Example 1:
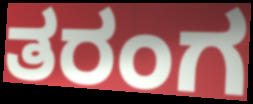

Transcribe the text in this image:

ತರಂಗ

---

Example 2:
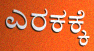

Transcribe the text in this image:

ಎರಕಕ್ಕೆ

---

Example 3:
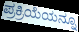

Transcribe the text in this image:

ಪ್ರಕ್ರಿಯೆಯನ್ನೂ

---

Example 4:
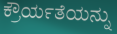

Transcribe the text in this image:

ಕ್ರೌರ್ಯತೆಯನ್ನು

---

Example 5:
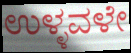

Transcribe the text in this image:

ಉಳ್ಳವಳೇ